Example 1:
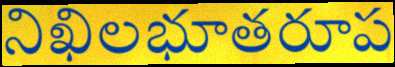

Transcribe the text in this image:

నిఖిలభూతరూప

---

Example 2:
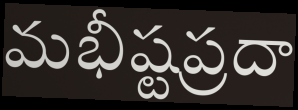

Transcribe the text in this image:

మభీష్టప్రదా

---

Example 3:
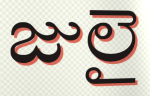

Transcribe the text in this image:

జులై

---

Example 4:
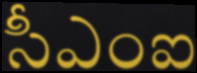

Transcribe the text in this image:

సీఎంఐ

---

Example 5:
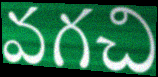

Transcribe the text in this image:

వగచి